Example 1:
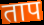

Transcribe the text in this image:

ताप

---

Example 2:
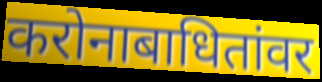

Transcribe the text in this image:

करोनाबाधितांवर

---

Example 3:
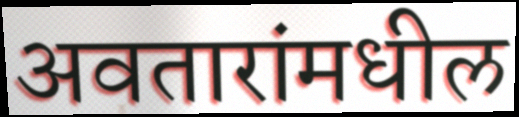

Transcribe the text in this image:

अवतारांमधील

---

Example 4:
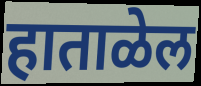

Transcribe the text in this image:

हाताळेल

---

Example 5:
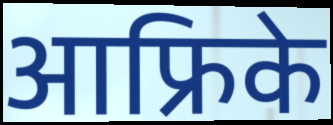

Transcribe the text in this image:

आफ्रिके